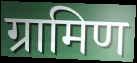
ग्रामिण